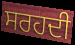
ਸਰਹਦੀ